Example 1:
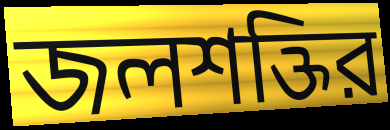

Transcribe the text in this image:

জলশক্তির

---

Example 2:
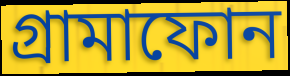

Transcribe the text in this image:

গ্রামাফোন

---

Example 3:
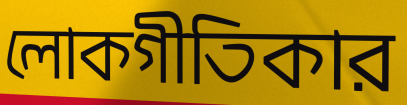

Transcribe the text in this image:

লোকগীতিকার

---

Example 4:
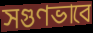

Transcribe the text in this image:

সগুণভাবে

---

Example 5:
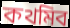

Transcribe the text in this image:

কথমিব